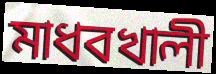
মাধবখালী